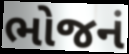
ભોજનં